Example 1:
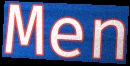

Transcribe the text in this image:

Men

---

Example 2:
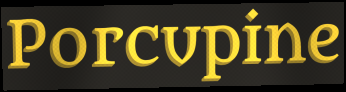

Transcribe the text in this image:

Porcupine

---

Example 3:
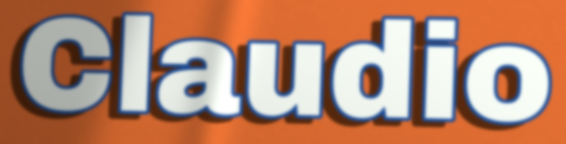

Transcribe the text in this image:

Claudio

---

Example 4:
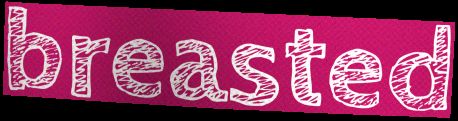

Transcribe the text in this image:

breasted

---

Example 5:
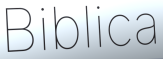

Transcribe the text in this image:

Biblica